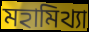
মহামিথ্যা